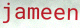
jameen